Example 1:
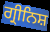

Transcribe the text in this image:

ਗ੍ਰੀਨਿਸ਼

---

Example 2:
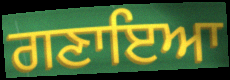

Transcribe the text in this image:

ਗਣਾਇਆ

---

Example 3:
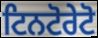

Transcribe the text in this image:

ਟਿਨਟੋਰੇਟੋ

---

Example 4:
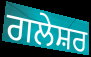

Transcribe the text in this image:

ਗਲੇਸ਼ਰ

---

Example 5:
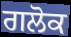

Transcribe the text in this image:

ਗਲੋਕ